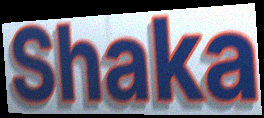
Shaka